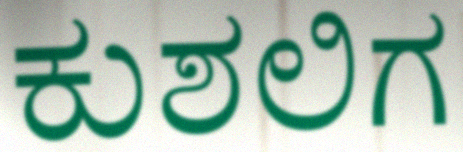
ಕುಶಲಿಗ